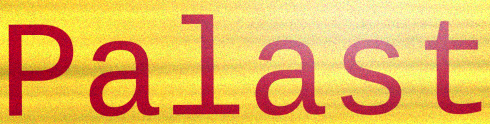
Palast